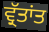
ਵ੍ਰੱਤਾਂਤ